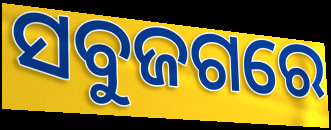
ସବୁଜଗରେ